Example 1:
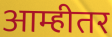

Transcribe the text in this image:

आम्हीतर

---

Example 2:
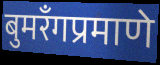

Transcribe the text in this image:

बुमरँगप्रमाणे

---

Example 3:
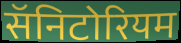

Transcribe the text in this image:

सॅनिटोरियम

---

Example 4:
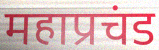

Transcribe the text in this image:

महाप्रचंड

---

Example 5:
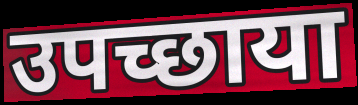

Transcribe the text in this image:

उपच्छाया